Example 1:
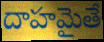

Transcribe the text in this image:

దాహమైతే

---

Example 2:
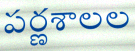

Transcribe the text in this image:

పర్ణశాలల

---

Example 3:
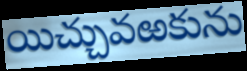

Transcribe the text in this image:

యిచ్చువఱకును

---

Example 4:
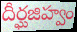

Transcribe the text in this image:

దీర్ఘజిహ్వం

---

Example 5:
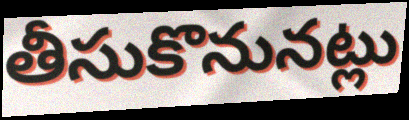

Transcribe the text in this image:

తీసుకొనునట్లు